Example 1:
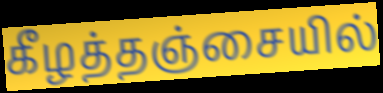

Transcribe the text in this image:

கீழத்தஞ்சையில்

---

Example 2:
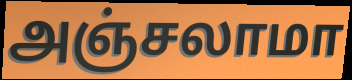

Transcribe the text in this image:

அஞ்சலாமா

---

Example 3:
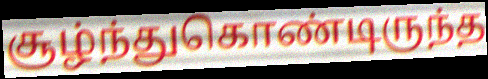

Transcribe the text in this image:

சூழ்ந்துகொண்டிருந்த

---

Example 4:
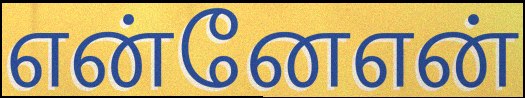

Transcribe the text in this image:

என்னேஎன்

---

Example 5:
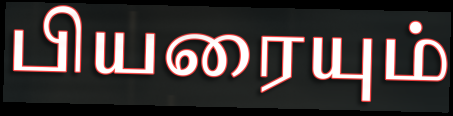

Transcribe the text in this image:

பியரையும்